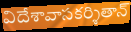
విదేశావాసకర్శితాన్